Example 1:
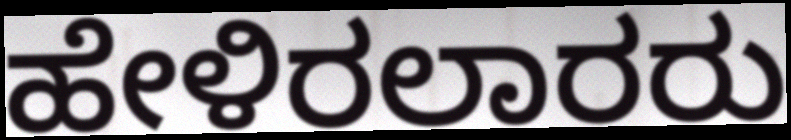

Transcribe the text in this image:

ಹೇಳಿರಲಾರರು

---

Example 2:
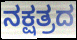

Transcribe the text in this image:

ನಕ್ಷತ್ರದ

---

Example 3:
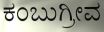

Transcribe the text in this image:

ಕಂಬುಗ್ರೀವ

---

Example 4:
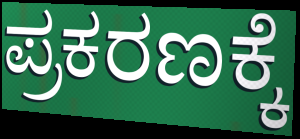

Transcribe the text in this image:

ಪ್ರಕರಣಕ್ಕೆ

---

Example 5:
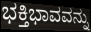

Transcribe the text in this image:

ಭಕ್ತಿಭಾವವನ್ನು